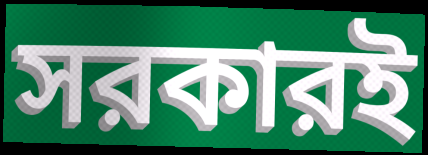
সরকারই